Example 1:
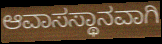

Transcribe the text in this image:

ಆವಾಸಸ್ಥಾನವಾಗಿ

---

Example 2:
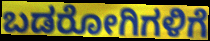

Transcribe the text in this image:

ಬಡರೋಗಿಗಳಿಗೆ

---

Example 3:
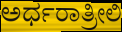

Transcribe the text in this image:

ಅರ್ಧರಾತ್ರೀಲಿ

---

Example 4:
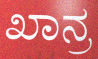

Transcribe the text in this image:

ಖಾನ್ರ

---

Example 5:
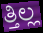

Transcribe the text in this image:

ತ್ತಿಲ್ಲ